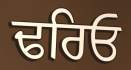
ਢਰਿਓ